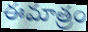
ఈమాత్రం